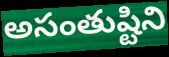
అసంతుష్టిని